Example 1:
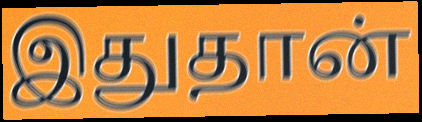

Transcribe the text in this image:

இதுதான்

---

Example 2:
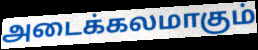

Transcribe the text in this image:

அடைக்கலமாகும்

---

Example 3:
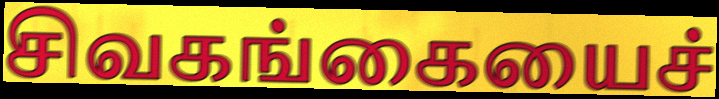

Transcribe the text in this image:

சிவகங்கையைச்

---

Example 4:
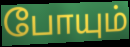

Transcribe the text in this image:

போயும்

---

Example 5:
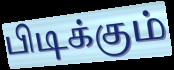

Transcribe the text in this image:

பிடிக்கும்